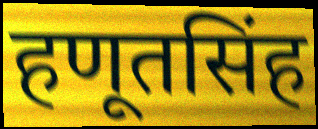
हणूतसिंह